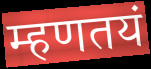
म्हणतयं